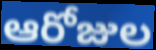
ఆరోజుల